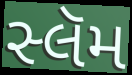
સ્લૅમ